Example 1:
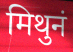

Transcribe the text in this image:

मिथुनं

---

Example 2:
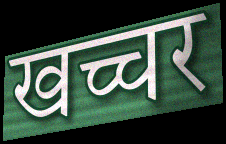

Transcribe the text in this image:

खच्‍चर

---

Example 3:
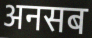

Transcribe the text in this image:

अनसब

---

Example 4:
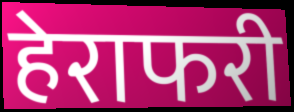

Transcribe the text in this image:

हेराफरी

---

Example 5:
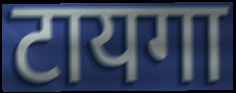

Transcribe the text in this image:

टायगा